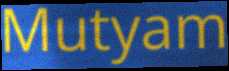
Mutyam